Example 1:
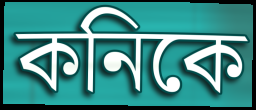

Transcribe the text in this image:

কনিকে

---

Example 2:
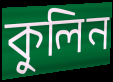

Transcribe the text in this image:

কুলিন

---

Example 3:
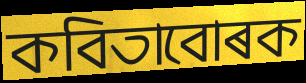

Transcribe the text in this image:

কবিতাবোৰক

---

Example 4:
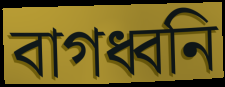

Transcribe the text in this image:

বাগধ্বনি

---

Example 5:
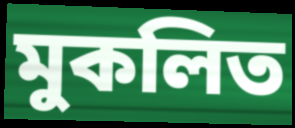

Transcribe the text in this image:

মুকলিত